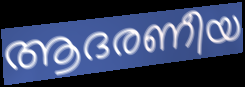
ആദരണീയ